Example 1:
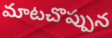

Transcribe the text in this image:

మాటచొప్పున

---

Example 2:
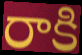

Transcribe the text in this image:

రాకి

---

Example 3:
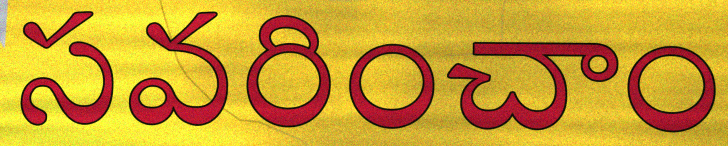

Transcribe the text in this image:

సవరించాం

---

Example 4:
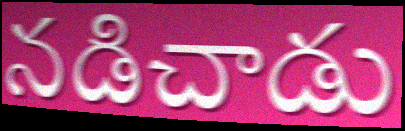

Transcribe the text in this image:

నడిచాడు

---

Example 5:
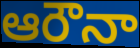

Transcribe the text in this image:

ఆరౌనా